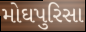
મોઘપુરિસા